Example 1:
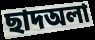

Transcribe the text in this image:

ছাদঅলা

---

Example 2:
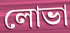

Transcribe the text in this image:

লোভা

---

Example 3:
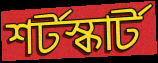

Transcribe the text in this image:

শর্টস্কার্ট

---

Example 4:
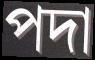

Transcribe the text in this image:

পদা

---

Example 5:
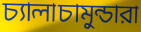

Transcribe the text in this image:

চ্যালাচামুন্ডারা